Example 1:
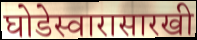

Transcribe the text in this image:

घोडेस्वारासारखी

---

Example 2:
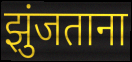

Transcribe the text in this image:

झुंजताना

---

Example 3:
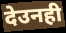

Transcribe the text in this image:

देउनही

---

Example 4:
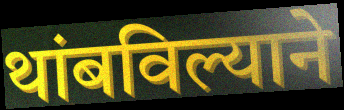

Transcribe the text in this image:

थांबविल्याने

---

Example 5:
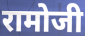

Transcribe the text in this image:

रामोजी